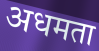
अधमता